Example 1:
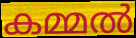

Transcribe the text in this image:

കമ്മൽ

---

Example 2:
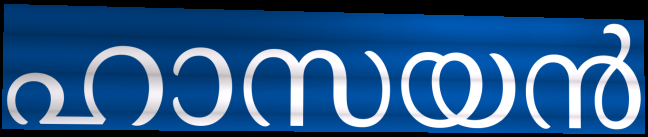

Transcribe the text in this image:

ഹാസയൻ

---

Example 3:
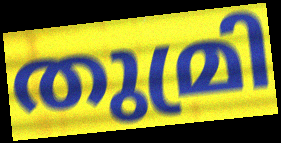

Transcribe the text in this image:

തുമ്രി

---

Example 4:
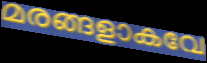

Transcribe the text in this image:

മരങ്ങളാകവേ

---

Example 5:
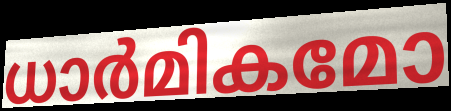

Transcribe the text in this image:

ധാർമികമോ